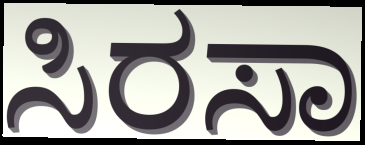
ಸಿರಸಾ